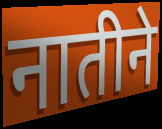
नातीने